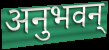
अनुभवन्